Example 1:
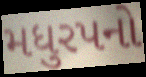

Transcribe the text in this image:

મધુરપનો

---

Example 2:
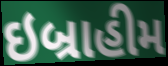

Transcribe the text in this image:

ઇબ્રાહીમ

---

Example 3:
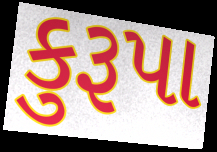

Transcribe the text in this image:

કુરૂપા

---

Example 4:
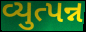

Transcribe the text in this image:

વ્યુત્પન્ન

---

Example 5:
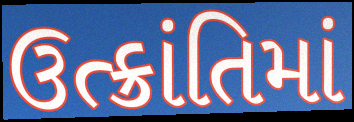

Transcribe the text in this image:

ઉત્ક્રાંતિમાં